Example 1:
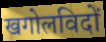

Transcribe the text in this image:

खगोलविदों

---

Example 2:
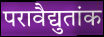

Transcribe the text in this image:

परावैद्युतांक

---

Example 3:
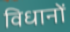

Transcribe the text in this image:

विधानों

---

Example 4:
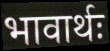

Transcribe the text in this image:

भावार्थः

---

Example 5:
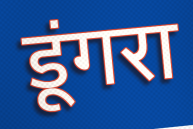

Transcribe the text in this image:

डूंगरा